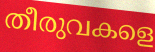
തീരുവകളെ